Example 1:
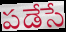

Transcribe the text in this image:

పడేసే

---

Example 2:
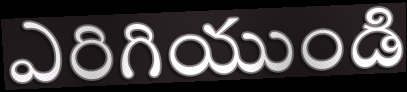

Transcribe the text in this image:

ఎరిగియుండి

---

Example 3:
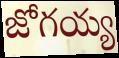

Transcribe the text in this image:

జోగయ్య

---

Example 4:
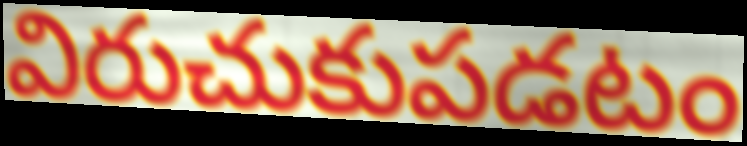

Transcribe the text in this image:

విరుచుకుపడటం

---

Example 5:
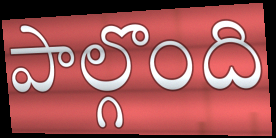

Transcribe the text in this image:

పాల్గొంది